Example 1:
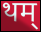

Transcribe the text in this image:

थम्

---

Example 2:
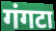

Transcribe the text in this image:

गंगटा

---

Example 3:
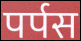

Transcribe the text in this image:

पर्पस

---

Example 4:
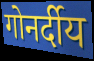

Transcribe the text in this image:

गोनर्दीय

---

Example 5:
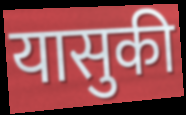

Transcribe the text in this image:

यासुकी